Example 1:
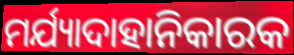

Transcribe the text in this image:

ମର୍ଯ୍ୟାଦାହାନିକାରକ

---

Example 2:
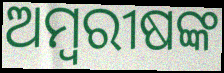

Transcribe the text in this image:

ଅମ୍ବରୀଷଙ୍କ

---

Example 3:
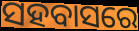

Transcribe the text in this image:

ସହବାସରେ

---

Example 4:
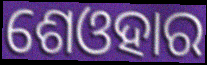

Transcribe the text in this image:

ଶେଓହାର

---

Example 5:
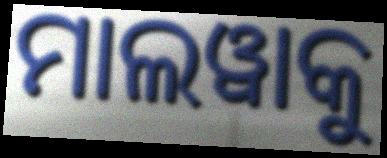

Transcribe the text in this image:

ମାଲୱାକୁ